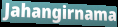
Jahangirnama